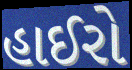
હાઈરો